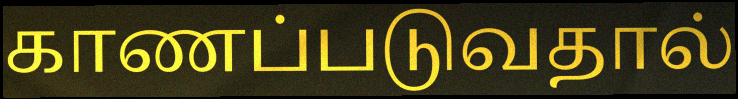
காணப்படுவதால்